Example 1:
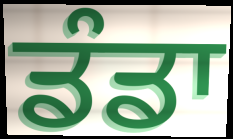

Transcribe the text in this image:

ਡੰਡਾ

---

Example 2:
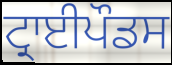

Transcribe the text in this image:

ਟ੍ਰਾਈਪੌਡਸ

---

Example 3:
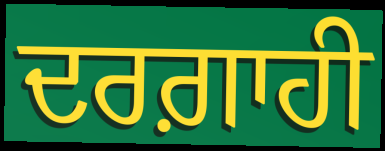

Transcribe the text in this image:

ਦਰਗ਼ਾਹੀ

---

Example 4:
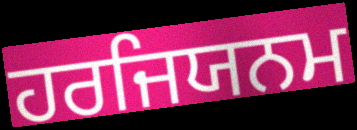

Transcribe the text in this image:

ਹਰਜਿਯਨਮ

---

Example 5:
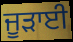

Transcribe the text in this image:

ਜੂੜਾਈ